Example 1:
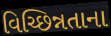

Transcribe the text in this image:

વિચ્છિન્નતાના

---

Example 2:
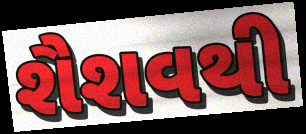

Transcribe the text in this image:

શૈશવથી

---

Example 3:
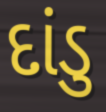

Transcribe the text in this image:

દાંડુ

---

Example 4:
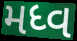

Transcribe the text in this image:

મધ્વ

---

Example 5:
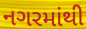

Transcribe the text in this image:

નગરમાંથી